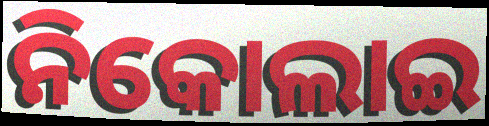
ନିକୋଲାଇ